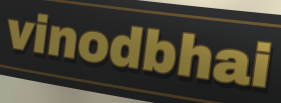
vinodbhai